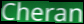
Cheran